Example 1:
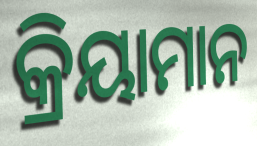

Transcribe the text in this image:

କ୍ରିୟାମାନ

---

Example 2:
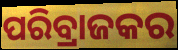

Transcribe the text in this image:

ପରିବ୍ରାଜକର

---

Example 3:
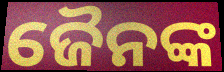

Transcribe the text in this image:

ଜୈନଙ୍କ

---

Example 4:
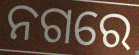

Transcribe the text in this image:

ନଗରେ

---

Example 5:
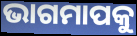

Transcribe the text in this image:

ଭାଗମାପକୁ